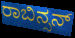
ರಾಬಿನ್ಸನ್